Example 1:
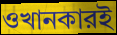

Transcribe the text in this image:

ওখানকারই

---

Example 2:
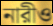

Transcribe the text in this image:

নারীও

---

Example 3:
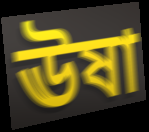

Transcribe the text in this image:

ঊষা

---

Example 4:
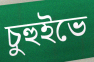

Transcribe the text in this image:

চুহুইভে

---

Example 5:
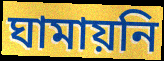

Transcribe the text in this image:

ঘামায়নি